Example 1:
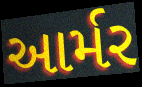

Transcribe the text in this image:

આર્મર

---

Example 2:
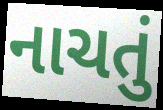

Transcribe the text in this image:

નાચતું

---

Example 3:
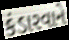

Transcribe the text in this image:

કંડારવાને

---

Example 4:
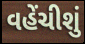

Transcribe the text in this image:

વહેંચીશું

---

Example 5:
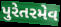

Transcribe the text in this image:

પુરેતરમેવ